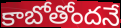
కాబోతోందనే